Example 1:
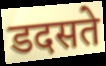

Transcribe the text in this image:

डदसते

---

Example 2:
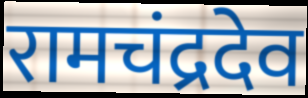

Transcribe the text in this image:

रामचंद्रदेव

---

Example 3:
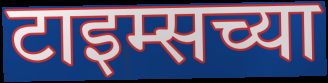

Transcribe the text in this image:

टाइम्सच्या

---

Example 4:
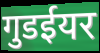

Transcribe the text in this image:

गुडईयर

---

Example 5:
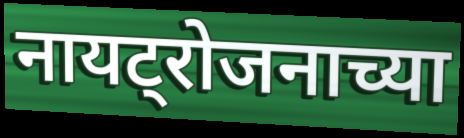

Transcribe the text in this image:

नायट्रोजनाच्या